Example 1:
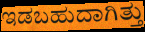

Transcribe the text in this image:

ಇಡಬಹುದಾಗಿತ್ತು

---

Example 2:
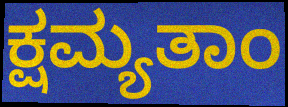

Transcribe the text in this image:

ಕ್ಷಮ್ಯತಾಂ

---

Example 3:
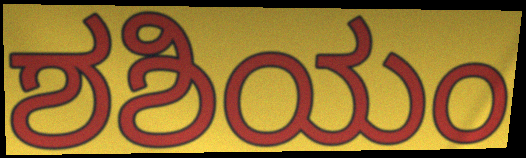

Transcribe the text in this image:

ಶಶಿಯಂ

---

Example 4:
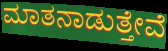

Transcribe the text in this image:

ಮಾತನಾಡುತ್ತೇವೆ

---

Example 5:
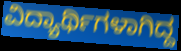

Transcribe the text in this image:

ವಿದ್ಯಾರ್ಥಿಗಳಾಗಿದ್ದ